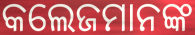
କଲେଜମାନଙ୍କ